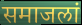
समाजलां